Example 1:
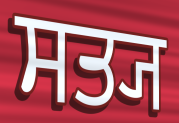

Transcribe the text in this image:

ਸਤ੍ਯ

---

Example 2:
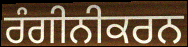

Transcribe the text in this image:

ਰੰਗੀਨੀਕਰਨ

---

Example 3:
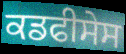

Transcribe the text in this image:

ਕਡਫੀਸੇਸ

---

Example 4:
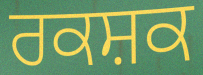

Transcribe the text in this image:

ਰਕਸ਼ਕ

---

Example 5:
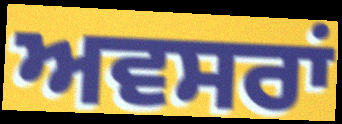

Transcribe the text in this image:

ਅਵਸਰਾਂ